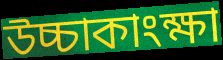
উচ্চাকাংক্ষা